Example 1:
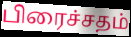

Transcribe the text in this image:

பிரைச்சதம்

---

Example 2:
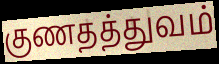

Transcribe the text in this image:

குணதத்துவம்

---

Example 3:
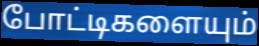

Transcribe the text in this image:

போட்டிகளையும்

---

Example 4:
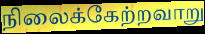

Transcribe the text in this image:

நிலைக்கேற்றவாறு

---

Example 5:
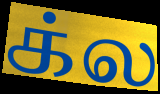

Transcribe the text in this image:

க்ல